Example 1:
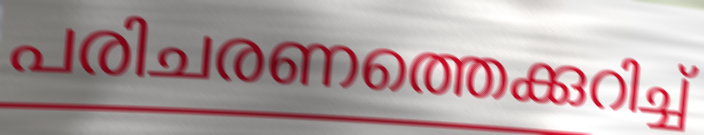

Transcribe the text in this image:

പരിചരണത്തെക്കുറിച്ച്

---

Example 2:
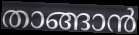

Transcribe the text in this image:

താങ്ങാൻ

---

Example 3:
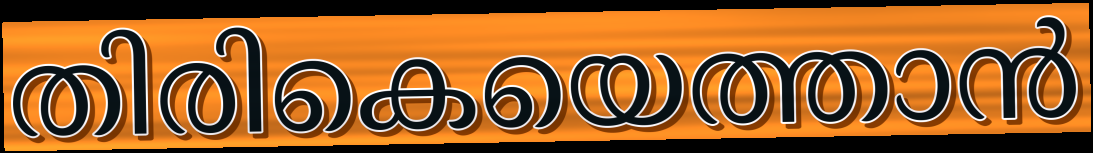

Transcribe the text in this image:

തിരികെയെത്താൻ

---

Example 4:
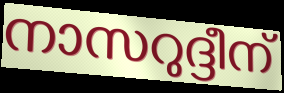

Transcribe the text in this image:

നാസറുദ്ദീന്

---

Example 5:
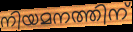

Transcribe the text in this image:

നിയമനത്തിന്